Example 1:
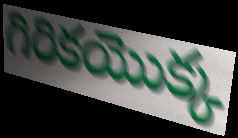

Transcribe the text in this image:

గిరికయొక్క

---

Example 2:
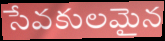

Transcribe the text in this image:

సేవకులమైన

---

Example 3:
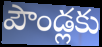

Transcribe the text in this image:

పౌండ్లకు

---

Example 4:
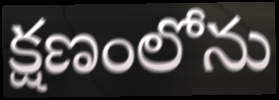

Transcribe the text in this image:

క్షణంలోను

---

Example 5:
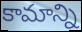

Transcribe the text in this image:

కామాన్ని